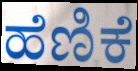
ಹೆಣಿಕೆ